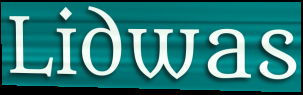
Lidwas